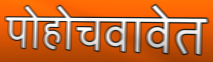
पोहोचवावेत